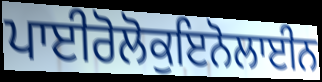
ਪਾਈਰੋਲੋਕੁਇਨੋਲਾਈਨ